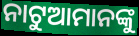
ନାଟୁଆମାନଙ୍କୁ